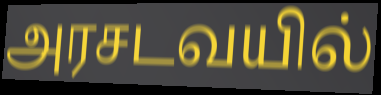
அரசடவயில்